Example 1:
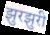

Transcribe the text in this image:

झुरझुरी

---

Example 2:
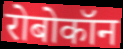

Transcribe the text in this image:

रोबोकॉन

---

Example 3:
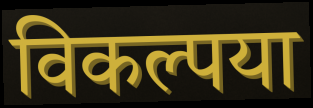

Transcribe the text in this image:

विकल्पया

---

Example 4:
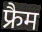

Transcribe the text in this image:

फ्रैम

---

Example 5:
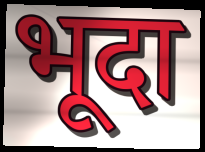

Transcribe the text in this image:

भूदा